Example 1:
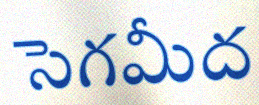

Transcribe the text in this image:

సెగమీద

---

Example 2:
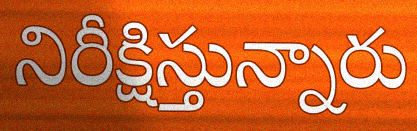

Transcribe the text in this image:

నిరీక్షిస్తున్నారు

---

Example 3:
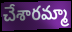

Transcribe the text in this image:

చేశారమ్మా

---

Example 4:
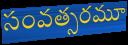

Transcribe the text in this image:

సంవత్సరమూ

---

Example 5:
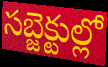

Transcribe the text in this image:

సబ్జెక్టుల్లో